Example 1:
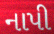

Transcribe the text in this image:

નાપી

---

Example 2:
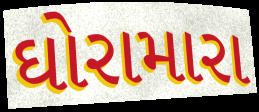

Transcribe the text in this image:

ઘોરામારા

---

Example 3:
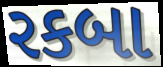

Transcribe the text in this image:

રકબા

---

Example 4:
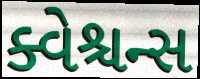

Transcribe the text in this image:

ક્વેશ્ચન્સ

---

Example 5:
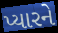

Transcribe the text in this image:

પ્યારને